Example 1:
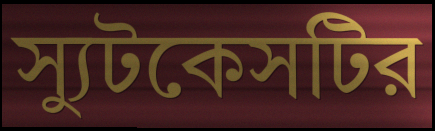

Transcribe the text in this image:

স্যুটকেসটির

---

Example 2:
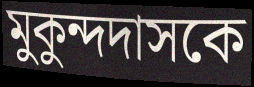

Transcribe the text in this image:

মুকুন্দদাসকে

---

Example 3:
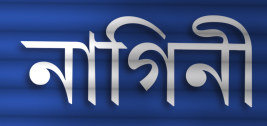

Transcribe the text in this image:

নাগিনী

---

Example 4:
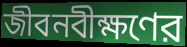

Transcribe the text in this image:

জীবনবীক্ষণের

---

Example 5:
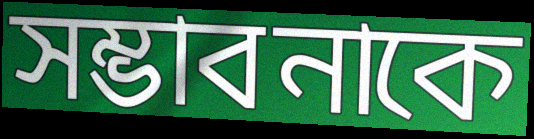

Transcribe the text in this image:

সম্ভাবনাকে